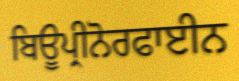
ਬਿਊਪ੍ਰੀਨੋਰਫਾਈਨ